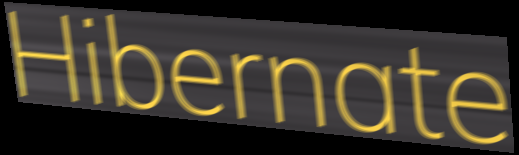
Hibernate